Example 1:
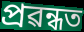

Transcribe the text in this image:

প্ৰৱন্ধত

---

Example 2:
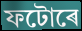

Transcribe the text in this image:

ফটোৰে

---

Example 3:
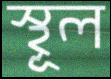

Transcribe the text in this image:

স্থূল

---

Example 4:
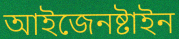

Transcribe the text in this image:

আইজেনষ্টাইন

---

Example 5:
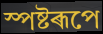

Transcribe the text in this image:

স্পষ্টৰূপে